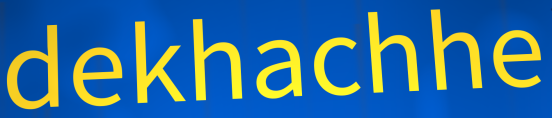
dekhachhe